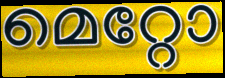
മെറ്റോ